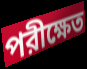
পরীক্ষেত